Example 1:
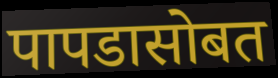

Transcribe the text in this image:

पापडासोबत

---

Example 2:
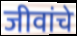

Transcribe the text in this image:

जीवांचे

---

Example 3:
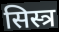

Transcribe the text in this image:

सिस्त्र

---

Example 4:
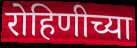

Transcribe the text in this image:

रोहिणीच्या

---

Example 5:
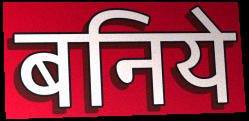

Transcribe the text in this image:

बनिये